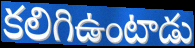
కలిగిఉంటాడు